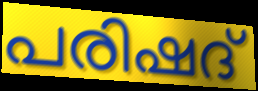
പരിഷദ്